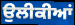
ਉਲੀਕੀਆਂ